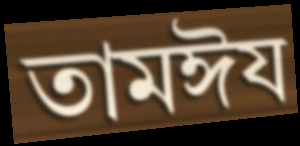
তামঈয